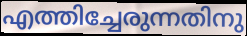
എത്തിച്ചേരുന്നതിനു